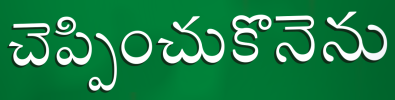
చెప్పించుకొనెను